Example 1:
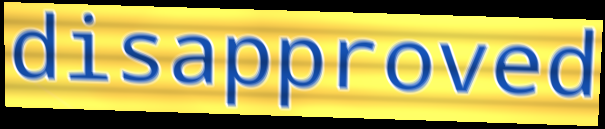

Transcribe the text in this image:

disapproved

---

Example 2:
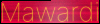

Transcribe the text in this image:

Mawardi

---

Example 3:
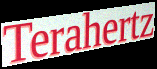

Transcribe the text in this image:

Terahertz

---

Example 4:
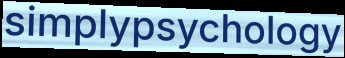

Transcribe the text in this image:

simplypsychology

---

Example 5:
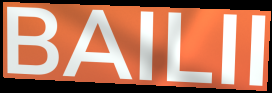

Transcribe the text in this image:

BAILII